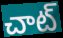
చాట్